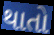
થાતો